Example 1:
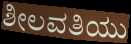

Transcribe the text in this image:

ಶೀಲವತಿಯು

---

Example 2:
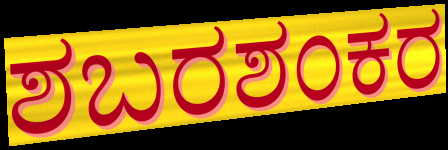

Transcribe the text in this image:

ಶಬರಶಂಕರ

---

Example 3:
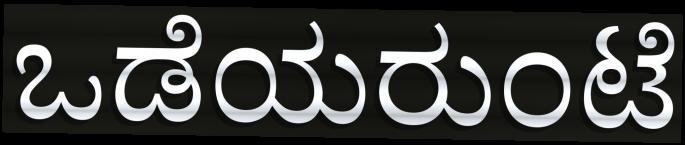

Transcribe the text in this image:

ಒಡೆಯರುಂಟೆ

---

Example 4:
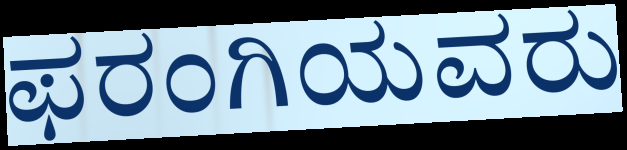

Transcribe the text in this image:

ಫರಂಗಿಯವರು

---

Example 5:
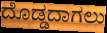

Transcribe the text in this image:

ದೊಡ್ಡದಾಗಲು